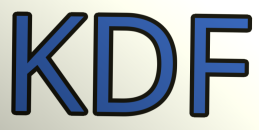
KDF